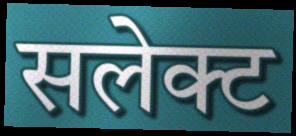
सलेक्ट